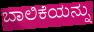
ಬಾಲಿಕೆಯನ್ನು